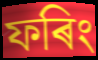
ফৰিং